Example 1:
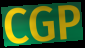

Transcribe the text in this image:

CGP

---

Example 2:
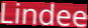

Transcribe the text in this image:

Lindee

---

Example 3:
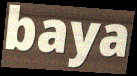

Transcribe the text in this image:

baya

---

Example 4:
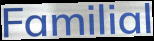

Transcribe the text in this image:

Familial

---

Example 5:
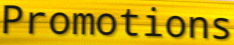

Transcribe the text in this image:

Promotions